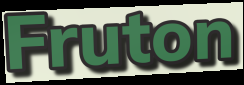
Fruton